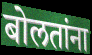
बोलतांना